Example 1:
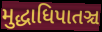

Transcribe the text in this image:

મુદ્ધાધિપાતઞ્ચ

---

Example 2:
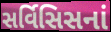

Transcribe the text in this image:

સર્વિસિસનાં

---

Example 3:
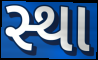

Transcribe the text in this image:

સ્થા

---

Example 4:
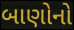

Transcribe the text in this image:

બાણોનો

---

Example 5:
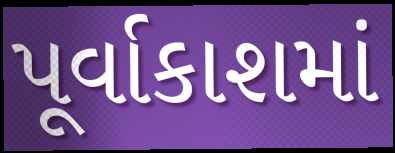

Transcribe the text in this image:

પૂર્વાકાશમાં